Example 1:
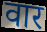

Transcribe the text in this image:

वार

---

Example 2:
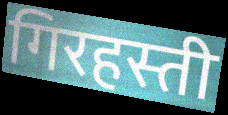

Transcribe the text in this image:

गिरहस्ती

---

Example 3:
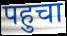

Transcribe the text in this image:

पहुचा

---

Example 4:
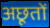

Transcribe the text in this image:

अछूतों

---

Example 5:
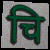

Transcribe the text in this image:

चि